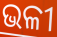
ଭଳୀ